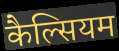
कैल्सियम